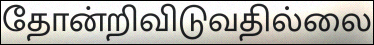
தோன்றிவிடுவதில்லை